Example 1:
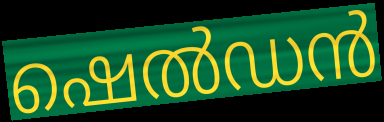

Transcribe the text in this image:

ഷെൽഡൻ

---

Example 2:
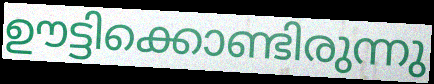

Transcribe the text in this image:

ഊട്ടിക്കൊണ്ടിരുന്നു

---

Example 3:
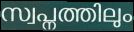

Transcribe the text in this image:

സ്വപ്നത്തിലും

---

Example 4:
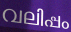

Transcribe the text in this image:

വലിപ്പം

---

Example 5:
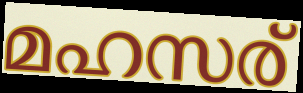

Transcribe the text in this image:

മഹസര്